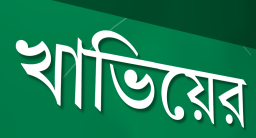
খাভিয়ের